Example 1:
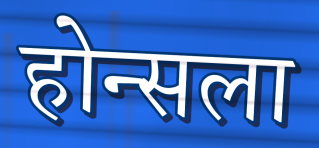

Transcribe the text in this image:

होन्सला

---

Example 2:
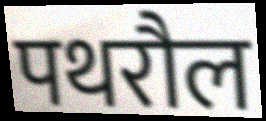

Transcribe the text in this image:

पथरौल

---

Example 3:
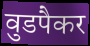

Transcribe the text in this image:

वुडपैकर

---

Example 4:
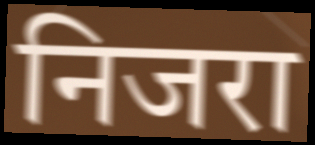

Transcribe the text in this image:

निजरा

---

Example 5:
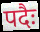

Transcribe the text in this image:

पदैः